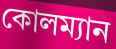
কোলম্যান